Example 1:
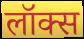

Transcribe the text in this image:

लॉक्स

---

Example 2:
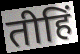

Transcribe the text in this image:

तीहिं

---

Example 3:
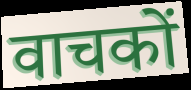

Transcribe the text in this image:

वाचकों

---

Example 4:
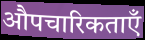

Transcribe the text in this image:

औपचारिकताएँ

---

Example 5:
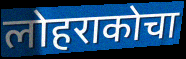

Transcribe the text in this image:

लोहराकोचा